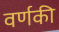
वर्णकी